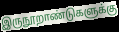
இருநூறாண்டுகளுக்கு